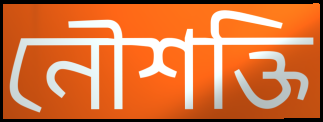
নৌশক্তি